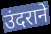
उंदराने